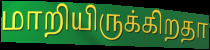
மாறியிருக்கிறதா